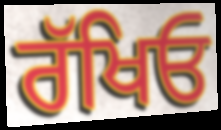
ਰੱਖਿਓ